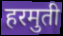
हरमुती